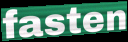
fasten